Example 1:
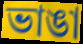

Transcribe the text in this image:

ভাঙা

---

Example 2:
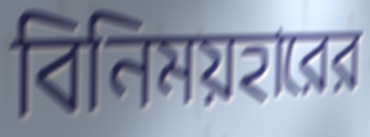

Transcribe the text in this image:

বিনিময়হারের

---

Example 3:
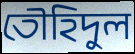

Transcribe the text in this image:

তৌহিদুল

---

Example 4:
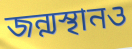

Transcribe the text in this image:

জন্মস্থানও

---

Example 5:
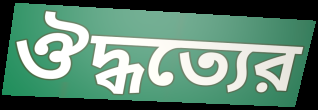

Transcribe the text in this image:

ঔদ্ধত্যের